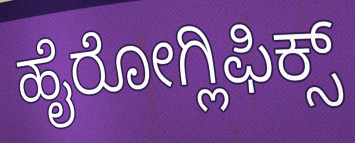
ಹೈರೋಗ್ಲಿಫಿಕ್ಸ್